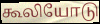
கூலியோடு